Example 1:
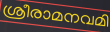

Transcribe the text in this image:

ശ്രീരാമനവമി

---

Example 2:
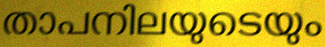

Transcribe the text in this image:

താപനിലയുടെയും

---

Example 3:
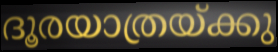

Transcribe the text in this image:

ദൂരയാത്രയ്ക്കു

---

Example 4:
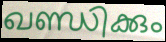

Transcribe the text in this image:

ഖണ്ഡിക്കും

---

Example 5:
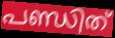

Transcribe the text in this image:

പണ്ഡിത്